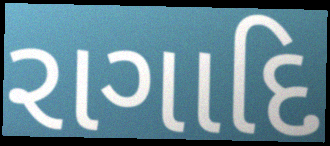
રાગાદિ